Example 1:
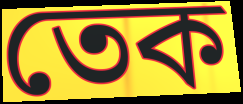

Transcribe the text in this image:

তেক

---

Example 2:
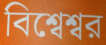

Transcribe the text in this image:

বিশ্বেশ্বর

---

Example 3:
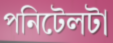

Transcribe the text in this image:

পনিটেলটা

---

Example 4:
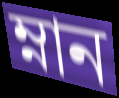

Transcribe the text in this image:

ম্নান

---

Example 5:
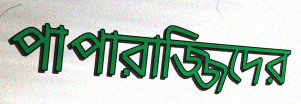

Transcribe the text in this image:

পাপারাজ্জিদের